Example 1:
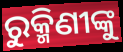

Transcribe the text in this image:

ରୁକ୍ମିଣୀଙ୍କୁ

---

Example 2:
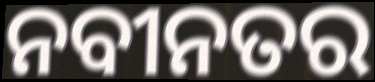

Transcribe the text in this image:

ନବୀନତର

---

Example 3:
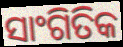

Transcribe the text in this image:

ସାଂଗିତିକ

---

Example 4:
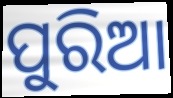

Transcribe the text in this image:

ପୁରିଆ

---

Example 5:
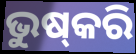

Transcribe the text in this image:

ଭୁଷ୍‍କରି